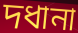
দধানা